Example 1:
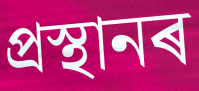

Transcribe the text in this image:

প্ৰস্থানৰ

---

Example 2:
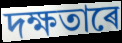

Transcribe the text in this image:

দক্ষতাৰে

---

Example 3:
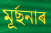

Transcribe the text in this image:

মূৰ্ছনাৰ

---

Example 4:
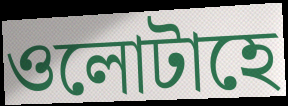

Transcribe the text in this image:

ওলোটাহে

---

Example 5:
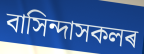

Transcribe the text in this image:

বাসিন্দাসকলৰ